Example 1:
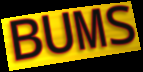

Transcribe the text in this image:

BUMS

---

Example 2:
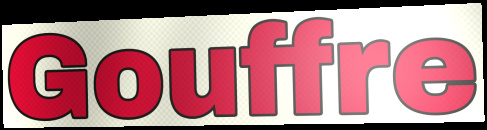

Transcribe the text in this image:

Gouffre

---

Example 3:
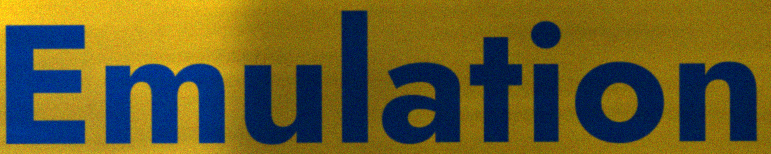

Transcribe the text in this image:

Emulation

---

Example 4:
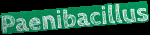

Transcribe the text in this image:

Paenibacillus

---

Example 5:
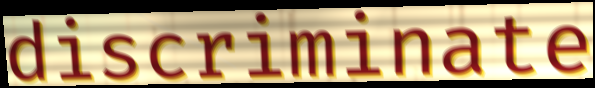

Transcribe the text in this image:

discriminate